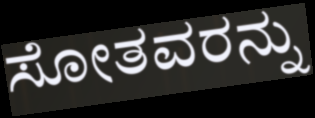
ಸೋತವರನ್ನು